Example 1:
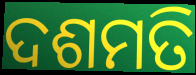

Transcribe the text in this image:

ଦଶମତି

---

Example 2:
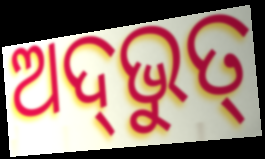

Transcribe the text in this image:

ଅଦ୍‌ଭୁତ୍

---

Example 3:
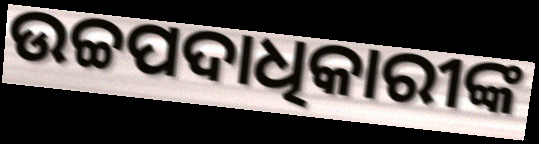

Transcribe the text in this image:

ଉଚ୍ଚପଦାଧିକାରୀଙ୍କ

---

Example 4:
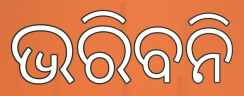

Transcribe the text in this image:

ଭରିବନି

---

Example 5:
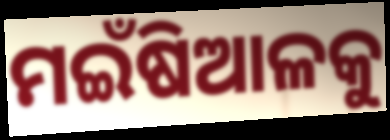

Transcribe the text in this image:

ମଇଁଷିଆଳକୁ